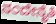
ನಂದೇನೈತಿ